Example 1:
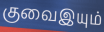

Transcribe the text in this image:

குவைஇயும்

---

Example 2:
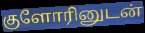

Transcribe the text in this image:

குளோரினுடன்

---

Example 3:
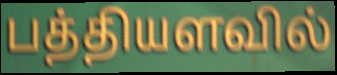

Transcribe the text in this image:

பத்தியளவில்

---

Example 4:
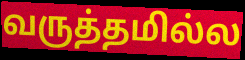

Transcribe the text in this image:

வருத்தமில்ல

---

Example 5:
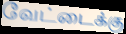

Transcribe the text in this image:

வேட்டைக்கு